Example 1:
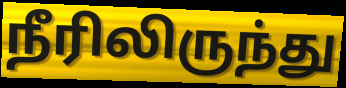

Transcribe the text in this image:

நீரிலிருந்து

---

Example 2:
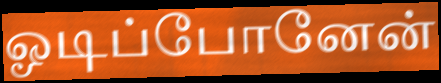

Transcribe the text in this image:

ஓடிப்போனேன்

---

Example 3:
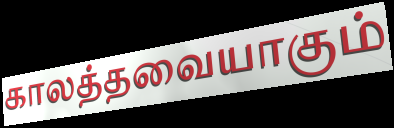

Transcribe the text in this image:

காலத்தவையாகும்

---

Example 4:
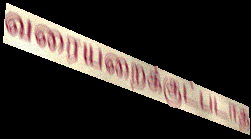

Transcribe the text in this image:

வரையறைக்குட்படாத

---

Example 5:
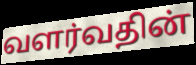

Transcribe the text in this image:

வளர்வதின்